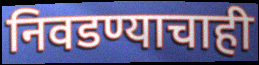
निवडण्याचाही